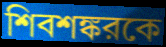
শিবশঙ্করকে